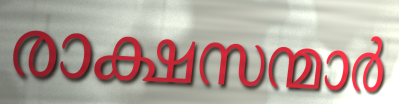
രാക്ഷസന്മാർ